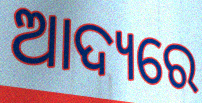
ଆଦ୍ୟରେ